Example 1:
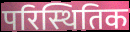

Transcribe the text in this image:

परिस्थितिक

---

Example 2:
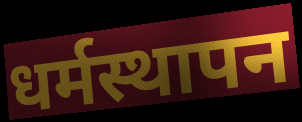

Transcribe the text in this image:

धर्मस्थापन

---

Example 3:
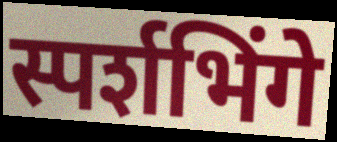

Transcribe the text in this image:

स्पर्शभिंगे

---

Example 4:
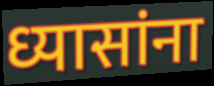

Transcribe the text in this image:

ध्यासांना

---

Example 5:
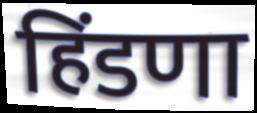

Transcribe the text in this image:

हिंडणा